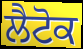
ਲੈਟੋਕ